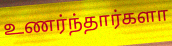
உணர்ந்தார்களா